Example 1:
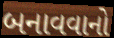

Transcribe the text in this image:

બનાવવાનો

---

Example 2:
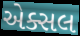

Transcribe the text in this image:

એક્સલ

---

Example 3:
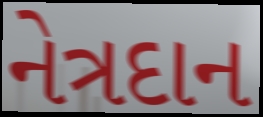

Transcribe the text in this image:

નેત્રદાન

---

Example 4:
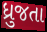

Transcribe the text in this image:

ધ્રુજતા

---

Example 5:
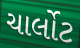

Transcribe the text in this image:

ચાર્લોટ